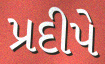
પ્રદીપે